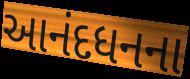
આનંદધનના